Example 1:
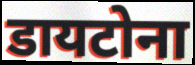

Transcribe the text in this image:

डायटोना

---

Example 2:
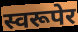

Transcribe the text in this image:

स्वरूपेर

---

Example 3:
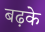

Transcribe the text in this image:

बढ़के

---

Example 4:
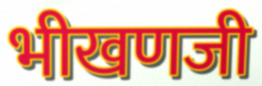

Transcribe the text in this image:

भीखणजी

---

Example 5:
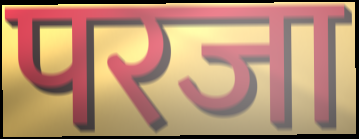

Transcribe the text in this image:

परजा